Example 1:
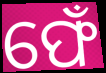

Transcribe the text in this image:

ଫେଁ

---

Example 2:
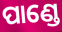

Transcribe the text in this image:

ପାଣ୍ଡେ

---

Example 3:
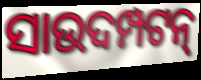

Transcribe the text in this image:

ସାଉଦମ୍ପଟନ୍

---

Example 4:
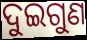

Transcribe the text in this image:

ଦୁଇଗୁଣ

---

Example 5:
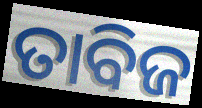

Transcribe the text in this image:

ତାବିଜ